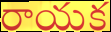
రాయక